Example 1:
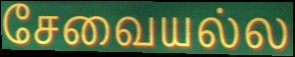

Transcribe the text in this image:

சேவையல்ல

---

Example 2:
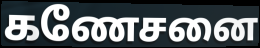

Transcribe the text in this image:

கணேசனை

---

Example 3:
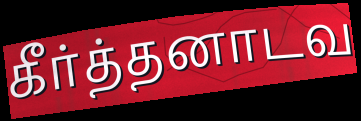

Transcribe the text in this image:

கீர்த்தனாடவ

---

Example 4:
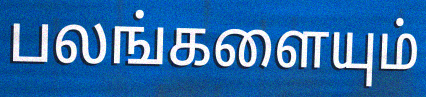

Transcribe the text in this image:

பலங்களையும்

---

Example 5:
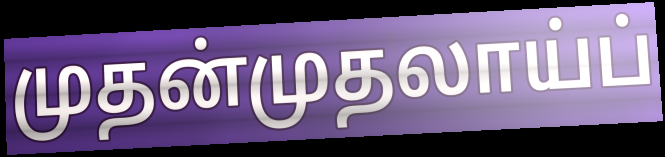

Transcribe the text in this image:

முதன்முதலாய்ப்